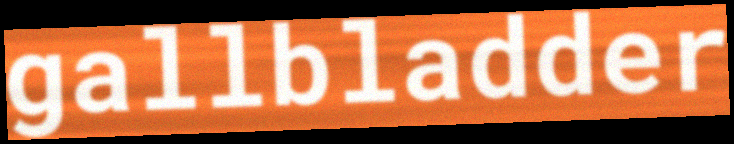
gallbladder